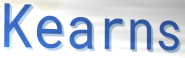
Kearns